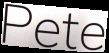
Pete